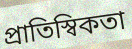
প্রাতিস্বিকতা